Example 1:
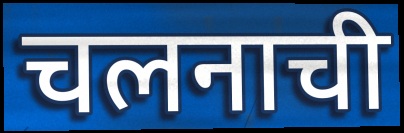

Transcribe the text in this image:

चलनाची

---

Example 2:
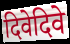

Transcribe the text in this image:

दिवेदिवे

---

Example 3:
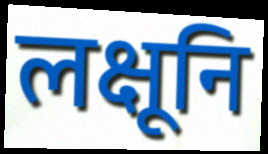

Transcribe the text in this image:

लक्षूनि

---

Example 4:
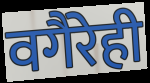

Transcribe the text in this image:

वगैरेही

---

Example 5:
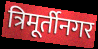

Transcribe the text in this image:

त्रिमूर्तीनगर